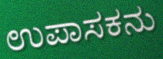
ಉಪಾಸಕನು